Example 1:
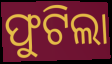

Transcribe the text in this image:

ଫୁଟିଲା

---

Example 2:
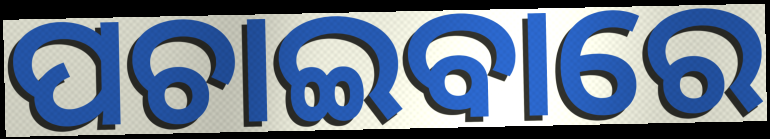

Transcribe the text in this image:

ପଚାଇବାରେ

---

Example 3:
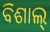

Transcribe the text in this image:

ବିଶାଲ୍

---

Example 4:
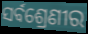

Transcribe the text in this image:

ସର୍ବଶ୍ରେଣୀର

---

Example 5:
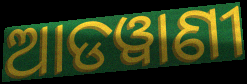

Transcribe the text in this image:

ଆଡୱାଣୀ